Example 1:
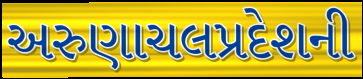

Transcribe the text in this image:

અરુણાચલપ્રદેશની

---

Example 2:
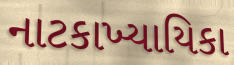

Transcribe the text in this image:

નાટકાખ્યાયિકા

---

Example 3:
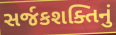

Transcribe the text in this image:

સર્જકશક્તિનું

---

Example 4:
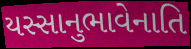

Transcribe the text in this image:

યસ્સાનુભાવેનાતિ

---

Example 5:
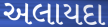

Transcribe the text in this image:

અલાયદા